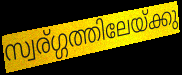
സ്വര്ഗ്ഗത്തിലേയ്ക്കു